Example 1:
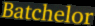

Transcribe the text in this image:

Batchelor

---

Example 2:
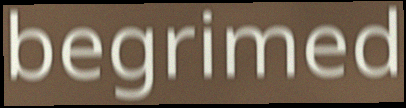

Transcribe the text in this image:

begrimed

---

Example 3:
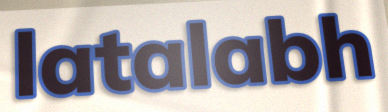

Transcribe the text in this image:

latalabh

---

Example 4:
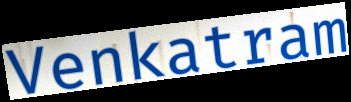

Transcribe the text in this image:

Venkatram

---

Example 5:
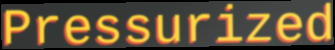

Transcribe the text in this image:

Pressurized